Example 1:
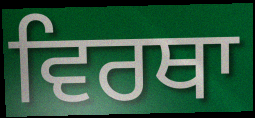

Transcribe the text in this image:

ਵਿਰਥਾ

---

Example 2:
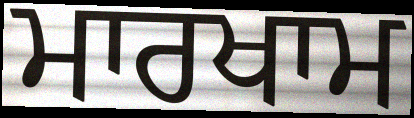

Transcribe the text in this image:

ਮਾਰਖਾਮ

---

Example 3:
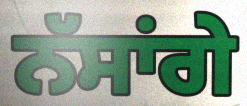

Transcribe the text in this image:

ਨੱਸਾਂਗੇ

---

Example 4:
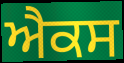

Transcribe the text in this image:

ਐਕਸ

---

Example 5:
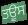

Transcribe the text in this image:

ਤਊਸ